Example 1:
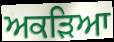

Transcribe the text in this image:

ਅਕੜਿਆ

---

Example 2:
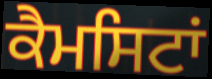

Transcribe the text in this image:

ਕੈਮਸਿਟਾਂ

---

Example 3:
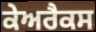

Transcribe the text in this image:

ਕੇਅਰੈਕਸ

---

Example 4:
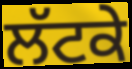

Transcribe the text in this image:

ਲੱਟਕੇ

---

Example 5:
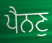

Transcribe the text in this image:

ਪੈਨਣੁ